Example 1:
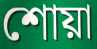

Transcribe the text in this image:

শোয়া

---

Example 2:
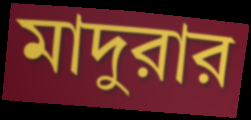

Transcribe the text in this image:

মাদুরার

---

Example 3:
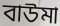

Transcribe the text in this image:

বাউমা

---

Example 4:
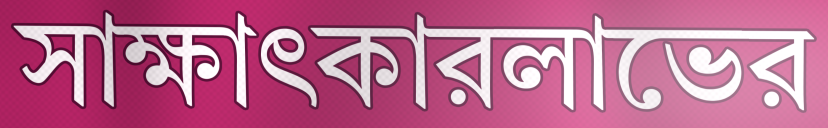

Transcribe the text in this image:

সাক্ষাৎকারলাভের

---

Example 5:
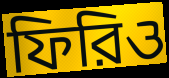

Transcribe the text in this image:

ফিরিও